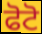
ਫੋਟੋ